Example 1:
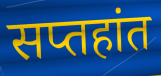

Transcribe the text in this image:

सप्तहांत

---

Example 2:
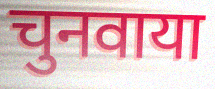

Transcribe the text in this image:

चुनवाया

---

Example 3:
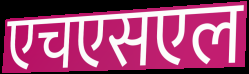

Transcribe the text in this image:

एचएसएल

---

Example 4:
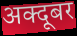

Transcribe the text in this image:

अक्दूबर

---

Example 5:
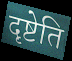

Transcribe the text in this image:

दृष्टेति